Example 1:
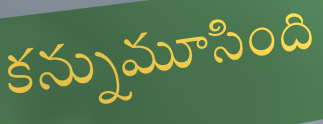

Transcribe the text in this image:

కన్నుమూసింది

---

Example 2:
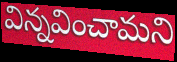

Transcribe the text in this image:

విన్నవించామని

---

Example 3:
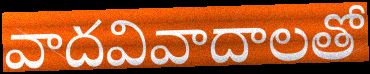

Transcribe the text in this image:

వాదవివాదాలతో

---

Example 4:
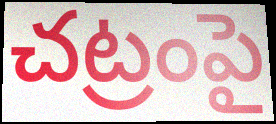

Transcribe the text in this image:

చట్రంపై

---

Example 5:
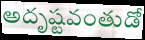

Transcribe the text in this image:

అదృష్టవంతుడో